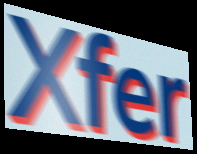
Xfer